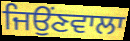
ਜਿਉਂਣਵਾਲਾ